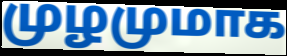
முழமுமாக